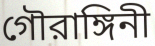
গৌরাঙ্গিনী